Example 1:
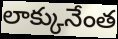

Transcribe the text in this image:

లాక్కునేంత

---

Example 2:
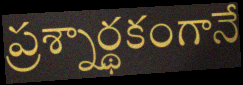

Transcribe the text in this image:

ప్రశ్నార్థకంగానే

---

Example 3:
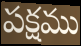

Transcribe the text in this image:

పక్షము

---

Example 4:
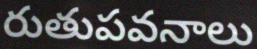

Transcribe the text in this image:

రుతుపవనాలు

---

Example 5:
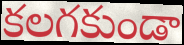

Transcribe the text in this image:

కలగకుండా